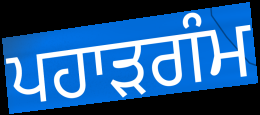
ਪਹਾੜਗੰਮ